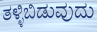
ತಳ್ಳಿಬಿಡುವುದು